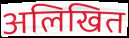
अलिखित